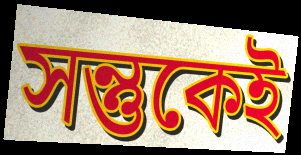
সন্তুকেই